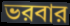
ভরবার